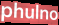
phulno